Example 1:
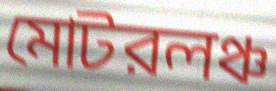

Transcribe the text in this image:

মোটরলঞ্চ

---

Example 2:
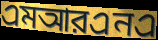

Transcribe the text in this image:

এমআরএনএ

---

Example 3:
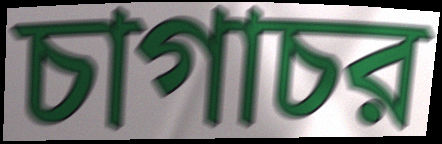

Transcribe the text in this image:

চাগাচর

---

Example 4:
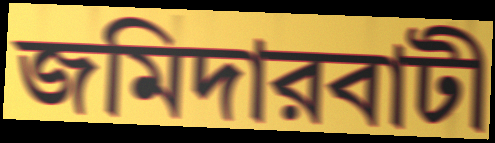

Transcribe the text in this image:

জমিদারবাটী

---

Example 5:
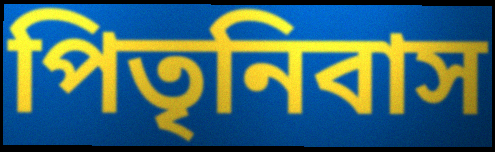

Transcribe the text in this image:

পিতৃনিবাস